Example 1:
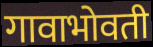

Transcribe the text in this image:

गावाभोवती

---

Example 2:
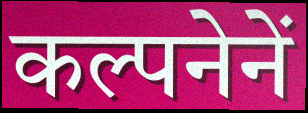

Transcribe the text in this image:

कल्पनेनें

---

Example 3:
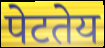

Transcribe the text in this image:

पेटतेय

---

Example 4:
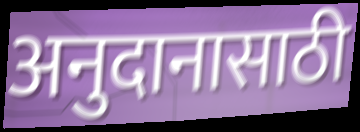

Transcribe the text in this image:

अनुदानासाठी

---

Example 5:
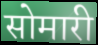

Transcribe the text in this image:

सोमारी